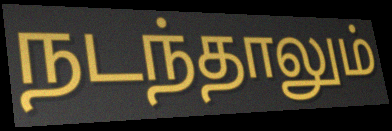
நடந்தாலும்